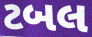
ટબલ